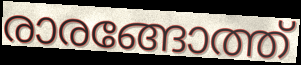
രാരങ്ങോത്ത്